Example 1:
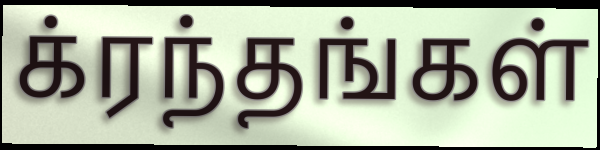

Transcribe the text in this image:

க்ரந்தங்கள்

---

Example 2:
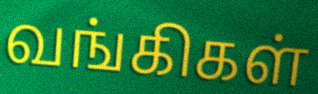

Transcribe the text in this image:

வங்கிகள்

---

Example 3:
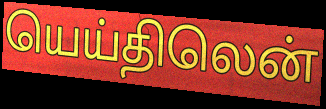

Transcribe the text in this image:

யெய்திலென்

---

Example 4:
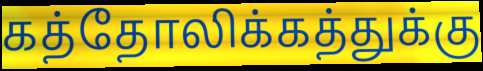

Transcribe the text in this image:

கத்தோலிக்கத்துக்கு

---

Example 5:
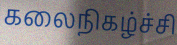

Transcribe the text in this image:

கலைநிகழ்ச்சி